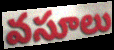
వసూలు